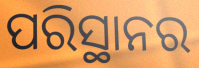
ପରିସ୍ଥାନର